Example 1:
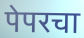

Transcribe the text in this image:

पेपरचा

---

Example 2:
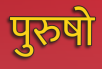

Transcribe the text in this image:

पुरुषो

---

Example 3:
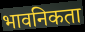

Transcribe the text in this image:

भावनिकता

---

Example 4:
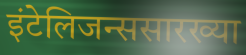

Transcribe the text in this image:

इंटेलिजन्ससारख्या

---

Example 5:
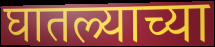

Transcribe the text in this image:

घातल्याच्या